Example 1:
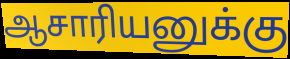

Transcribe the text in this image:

ஆசாரியனுக்கு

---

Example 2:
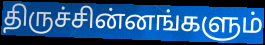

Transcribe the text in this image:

திருச்சின்னங்களும்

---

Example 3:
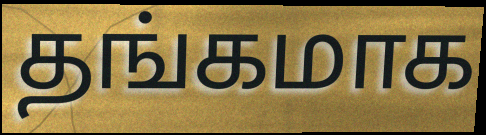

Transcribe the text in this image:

தங்கமாக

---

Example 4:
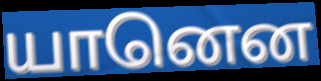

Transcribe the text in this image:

யானென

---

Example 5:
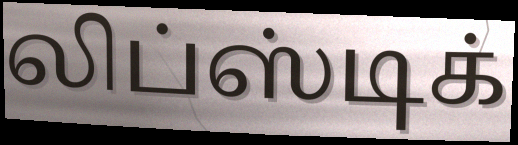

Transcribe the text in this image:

லிப்ஸ்டிக்